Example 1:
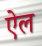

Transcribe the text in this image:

ऐल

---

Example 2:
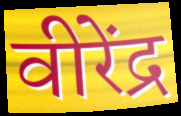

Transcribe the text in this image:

वीरेंद्र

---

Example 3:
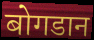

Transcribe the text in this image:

बोगडान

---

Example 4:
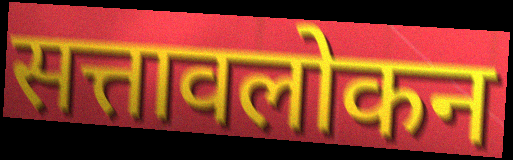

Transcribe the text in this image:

सत्तावलोकन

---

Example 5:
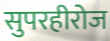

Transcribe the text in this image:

सुपरहीरोज